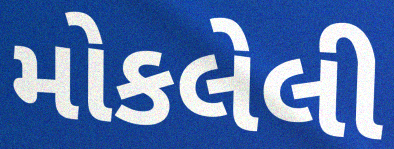
મોકલેલી